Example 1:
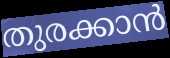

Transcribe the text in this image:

തുരക്കാൻ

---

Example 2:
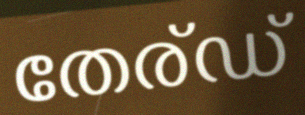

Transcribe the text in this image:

തേര്ഡ്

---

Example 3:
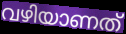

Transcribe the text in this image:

വഴിയാണത്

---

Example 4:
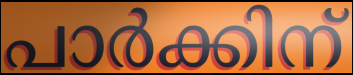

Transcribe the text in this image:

പാർക്കിന്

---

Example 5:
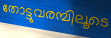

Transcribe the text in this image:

തോട്ടുവരമ്പിലൂടെ